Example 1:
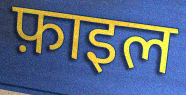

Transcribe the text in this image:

फ़ाइल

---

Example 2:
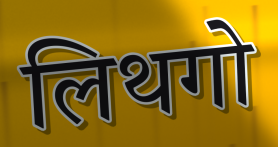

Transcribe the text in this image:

लिथगो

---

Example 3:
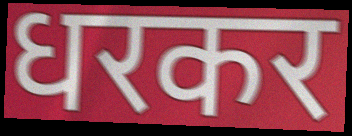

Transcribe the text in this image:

धरकर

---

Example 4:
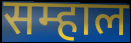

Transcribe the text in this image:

सम्हाल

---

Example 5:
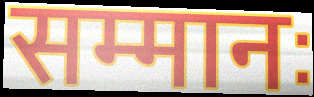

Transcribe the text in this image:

सम्मानः